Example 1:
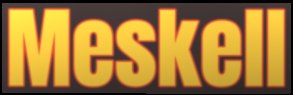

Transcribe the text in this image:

Meskell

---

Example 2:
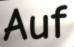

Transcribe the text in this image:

Auf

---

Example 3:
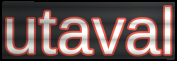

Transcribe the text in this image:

utaval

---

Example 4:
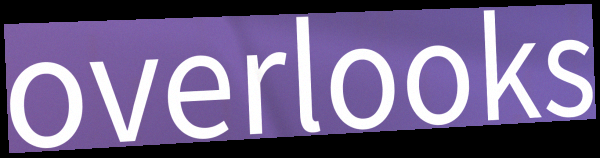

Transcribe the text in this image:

overlooks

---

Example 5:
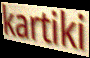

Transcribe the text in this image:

kartiki